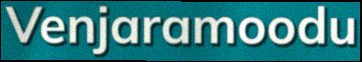
Venjaramoodu